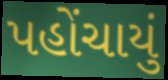
પહોંચાયું